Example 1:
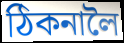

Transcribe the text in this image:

ঠিকনালৈ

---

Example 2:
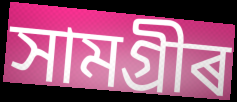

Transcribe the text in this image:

সামগ্ৰীৰ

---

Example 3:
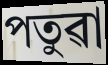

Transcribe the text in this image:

পতুৱা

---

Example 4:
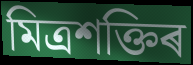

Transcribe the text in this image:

মিত্ৰশক্তিৰ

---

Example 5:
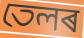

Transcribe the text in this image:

তেলৰ